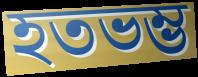
হতভম্ভ